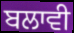
ਬਲਾਵੀ